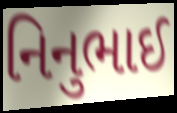
નિનુભાઈ